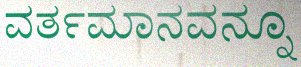
ವರ್ತಮಾನವನ್ನೂ